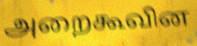
அறைகூவின